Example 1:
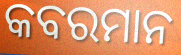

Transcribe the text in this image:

କବରମାନ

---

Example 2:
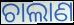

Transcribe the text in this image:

ଚାଲାଣ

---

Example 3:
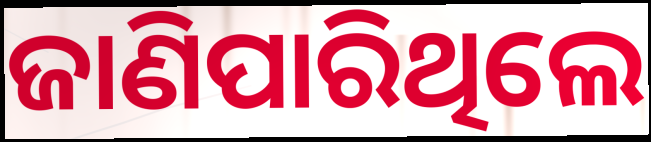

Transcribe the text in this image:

ଜାଣିପାରିଥିଲେ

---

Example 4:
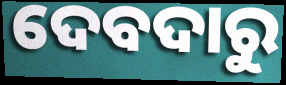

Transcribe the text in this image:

ଦେବଦାରୁ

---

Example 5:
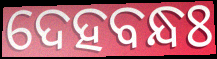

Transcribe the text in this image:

ଦେହବନ୍ଧଃ